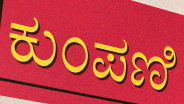
ಕುಂಪಣಿ